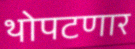
थोपटणार